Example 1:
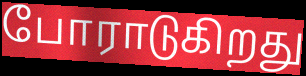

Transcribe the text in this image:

போராடுகிறது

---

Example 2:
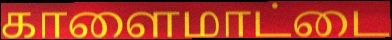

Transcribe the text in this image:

காளைமாட்டை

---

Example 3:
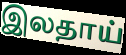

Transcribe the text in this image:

இலதாய்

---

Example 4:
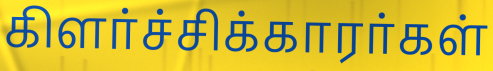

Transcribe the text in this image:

கிளர்ச்சிக்காரர்கள்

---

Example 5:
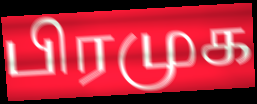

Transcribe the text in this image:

பிரமுக